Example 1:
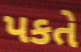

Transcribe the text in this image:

પકતે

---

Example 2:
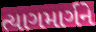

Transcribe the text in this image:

ત્યાગમાર્ગને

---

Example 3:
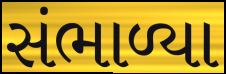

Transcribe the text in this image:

સંભાળ્યા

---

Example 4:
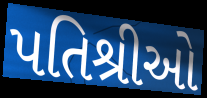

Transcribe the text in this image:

પતિશ્રીઓ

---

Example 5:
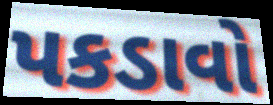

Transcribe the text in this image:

પકડાવો